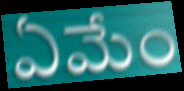
ఏమేం